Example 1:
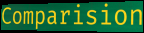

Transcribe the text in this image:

Comparision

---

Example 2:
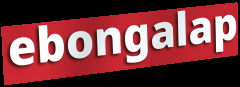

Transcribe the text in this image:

ebongalap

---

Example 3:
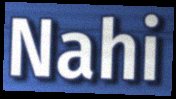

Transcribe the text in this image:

Nahi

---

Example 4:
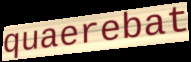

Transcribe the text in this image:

quaerebat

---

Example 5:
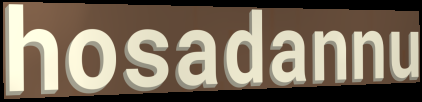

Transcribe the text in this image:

hosadannu